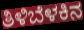
ತಿಳಿಬೆಳಕಿನ